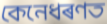
কেনেধৰণত